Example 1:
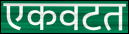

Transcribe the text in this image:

एकवटत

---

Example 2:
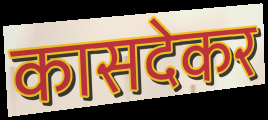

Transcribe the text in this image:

कासदेकर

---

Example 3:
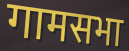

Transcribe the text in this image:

गामसभा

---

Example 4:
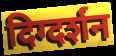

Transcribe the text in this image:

दिग्दर्शन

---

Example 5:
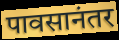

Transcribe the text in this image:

पावसानंतर